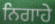
ਨਿਗਾਹੇ